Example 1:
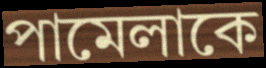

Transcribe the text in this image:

পামেলাকে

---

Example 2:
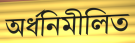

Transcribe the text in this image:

অর্ধনিমীলিত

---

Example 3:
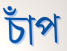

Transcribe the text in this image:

চাঁপ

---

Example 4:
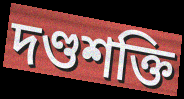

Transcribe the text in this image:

দণ্ডশক্তি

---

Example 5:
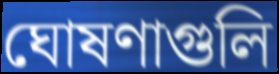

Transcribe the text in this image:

ঘোষণাগুলি